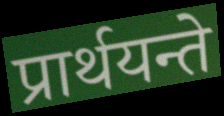
प्रार्थयन्ते